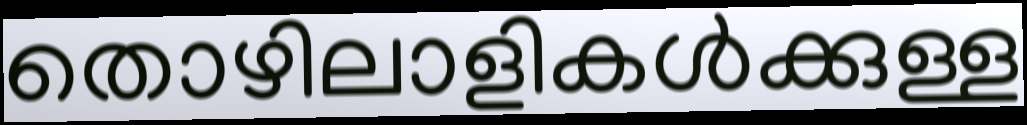
തൊഴിലാളികൾക്കുള്ള